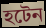
হটেন